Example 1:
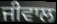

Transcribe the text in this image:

ਜੀਵਾਲ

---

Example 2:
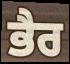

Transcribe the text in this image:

ਭੈਰ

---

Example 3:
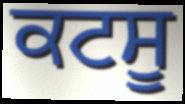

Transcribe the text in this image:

ਕਟਸੂ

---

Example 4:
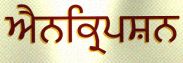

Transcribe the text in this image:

ਐਨਕ੍ਰਿਪਸ਼ਨ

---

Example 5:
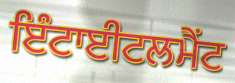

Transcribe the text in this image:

ਇੰਟਾਈਟਲਮੈਂਟ